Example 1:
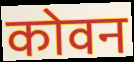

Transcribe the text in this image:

कोवन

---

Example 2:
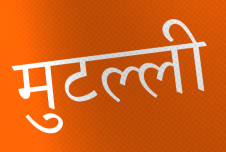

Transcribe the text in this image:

मुटल्ली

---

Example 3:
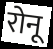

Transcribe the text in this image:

रोनू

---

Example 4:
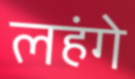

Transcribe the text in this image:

लहंगे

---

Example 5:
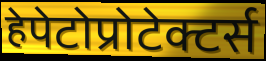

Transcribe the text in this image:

हेपेटोप्रोटेक्टर्स